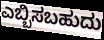
ಎಬ್ಬಿಸಬಹುದು